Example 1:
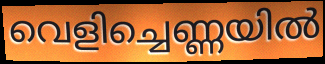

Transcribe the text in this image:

വെളിച്ചെണ്ണയിൽ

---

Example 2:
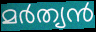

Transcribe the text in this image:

മർത്യൻ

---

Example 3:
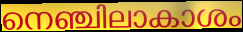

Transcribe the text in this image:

നെഞ്ചിലാകാശം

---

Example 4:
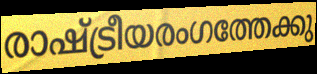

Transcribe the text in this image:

രാഷ്ട്രീയരംഗത്തേക്കു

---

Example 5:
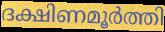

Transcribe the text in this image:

ദക്ഷിണമൂർത്തി